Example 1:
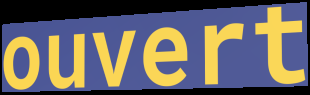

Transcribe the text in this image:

ouvert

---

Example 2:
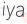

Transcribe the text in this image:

iya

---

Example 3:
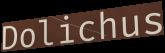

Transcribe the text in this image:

Dolichus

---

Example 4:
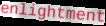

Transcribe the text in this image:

enlightment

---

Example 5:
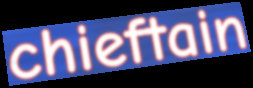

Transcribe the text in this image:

chieftain